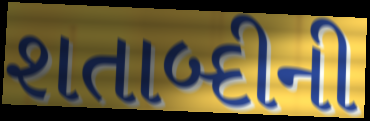
શતાબ્દીની